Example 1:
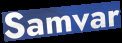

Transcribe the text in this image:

Samvar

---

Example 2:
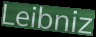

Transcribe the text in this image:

Leibniz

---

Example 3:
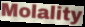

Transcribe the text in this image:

Molality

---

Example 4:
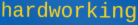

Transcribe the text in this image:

hardworking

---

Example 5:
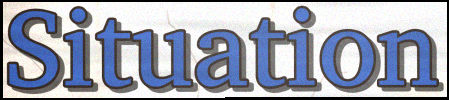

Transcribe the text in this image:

Situation